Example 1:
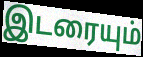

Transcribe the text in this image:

இடரையும்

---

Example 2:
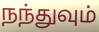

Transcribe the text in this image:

நந்துவும்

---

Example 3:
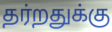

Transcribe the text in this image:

தர்றதுக்கு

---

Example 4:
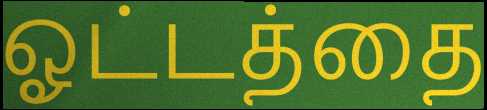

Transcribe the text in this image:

ஓட்டத்தை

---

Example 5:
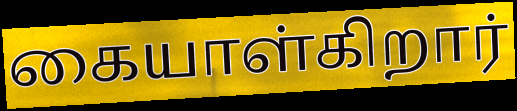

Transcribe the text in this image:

கையாள்கிறார்